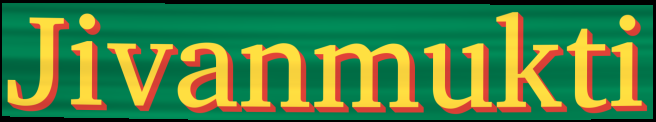
Jivanmukti